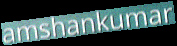
amshankumar